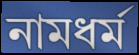
নামধৰ্ম